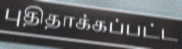
புதிதாக்கப்பட்ட